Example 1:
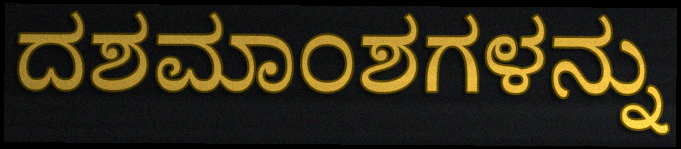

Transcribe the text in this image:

ದಶಮಾಂಶಗಳನ್ನು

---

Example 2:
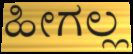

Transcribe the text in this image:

ಹೀಗಲ್ಲ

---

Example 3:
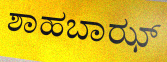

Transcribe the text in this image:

ಶಾಹಬಾಝ್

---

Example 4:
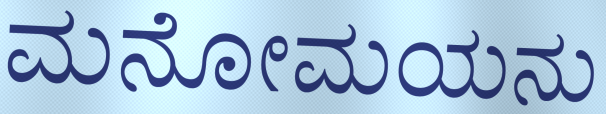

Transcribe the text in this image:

ಮನೋಮಯನು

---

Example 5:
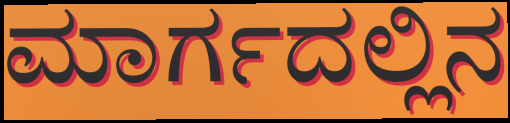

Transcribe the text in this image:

ಮಾರ್ಗದಲ್ಲಿನ